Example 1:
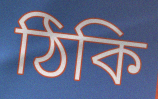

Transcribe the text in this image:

ঠিকি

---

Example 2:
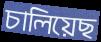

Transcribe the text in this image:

চালিয়েছ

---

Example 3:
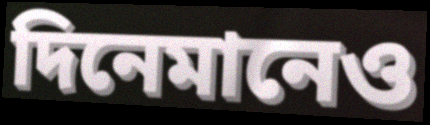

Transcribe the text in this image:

দিনেমানেও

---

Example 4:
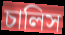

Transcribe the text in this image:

চালিস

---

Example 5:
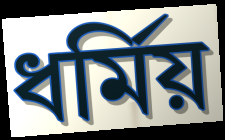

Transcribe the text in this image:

ধর্মিয়